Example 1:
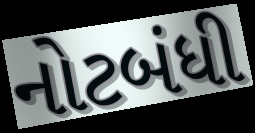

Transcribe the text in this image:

નોટબંધી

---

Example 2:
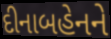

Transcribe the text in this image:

દીનાબહેનને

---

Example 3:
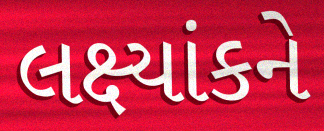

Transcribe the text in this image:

લક્ષ્યાંકને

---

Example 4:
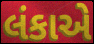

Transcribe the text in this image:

લંકાએ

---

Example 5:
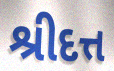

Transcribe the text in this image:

શ્રીદત્ત